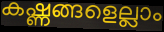
കഷ്ണങ്ങളെല്ലാം